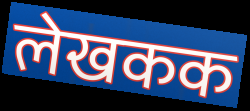
लेखकक